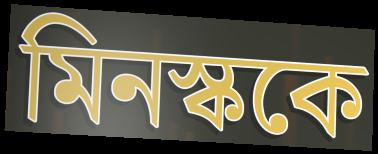
মিনস্ককে